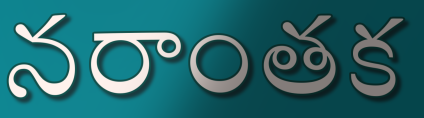
నరాంతక